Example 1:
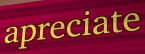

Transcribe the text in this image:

apreciate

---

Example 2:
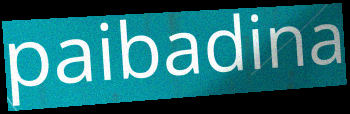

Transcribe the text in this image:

paibadina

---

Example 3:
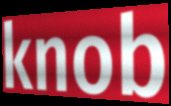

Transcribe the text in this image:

knob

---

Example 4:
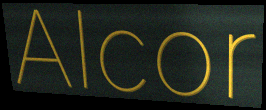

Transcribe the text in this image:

Alcor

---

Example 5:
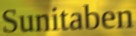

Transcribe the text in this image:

Sunitaben